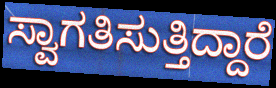
ಸ್ವಾಗತಿಸುತ್ತಿದ್ದಾರೆ